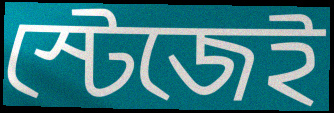
স্টেজেই